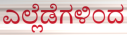
ಎಲ್ಲೆಡೆಗಳಿಂದ